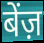
बेंज़